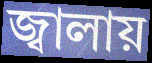
জ্বালায়